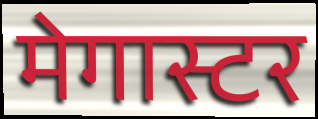
मेगास्टर